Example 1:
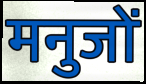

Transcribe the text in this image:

मनुजों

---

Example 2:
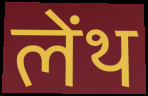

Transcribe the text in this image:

लेंथ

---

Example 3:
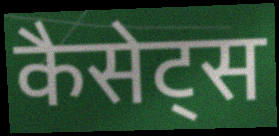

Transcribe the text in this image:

कैसेट्स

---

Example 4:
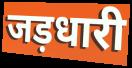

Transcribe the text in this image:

जड़धारी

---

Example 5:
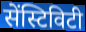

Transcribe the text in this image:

सेंस्टिविटी